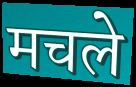
मचले